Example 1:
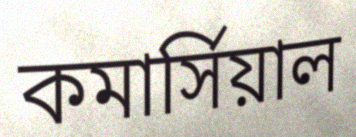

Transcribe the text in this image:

কমার্সিয়াল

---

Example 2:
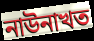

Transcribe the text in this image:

নাউনাখত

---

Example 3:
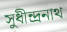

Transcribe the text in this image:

সুধীন্দ্রনাথ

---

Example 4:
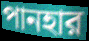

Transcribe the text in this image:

পানহার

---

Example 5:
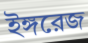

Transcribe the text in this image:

ইঙ্গরেজ